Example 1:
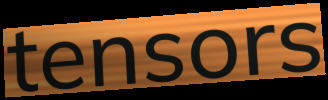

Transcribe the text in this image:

tensors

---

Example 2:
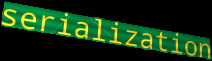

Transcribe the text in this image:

serialization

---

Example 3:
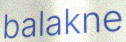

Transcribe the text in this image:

balakne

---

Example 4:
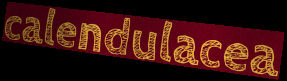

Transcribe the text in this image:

calendulacea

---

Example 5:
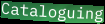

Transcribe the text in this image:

Cataloguing